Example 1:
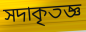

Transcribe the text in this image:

সদাকৃতজ্ঞ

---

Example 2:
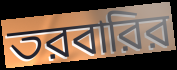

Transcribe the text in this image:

তরবারির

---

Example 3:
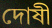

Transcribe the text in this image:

দোষী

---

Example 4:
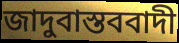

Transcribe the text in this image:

জাদুবাস্তববাদী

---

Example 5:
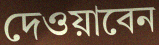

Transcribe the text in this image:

দেওয়াবেন